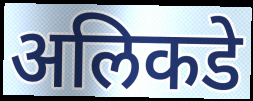
अलिकडे